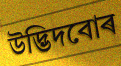
উদ্ভিদবোৰ